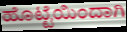
ಹೊಟ್ಟೆಯಿಂದಾಗಿ